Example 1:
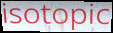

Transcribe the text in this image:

isotopic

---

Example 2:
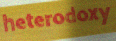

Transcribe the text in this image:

heterodoxy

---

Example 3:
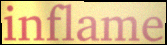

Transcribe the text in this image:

inflame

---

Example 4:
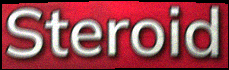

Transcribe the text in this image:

Steroid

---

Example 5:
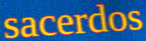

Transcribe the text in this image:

sacerdos